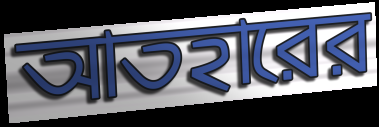
আতহারের